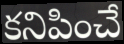
కనిపించే